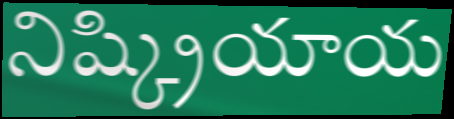
నిష్క్రియాయ